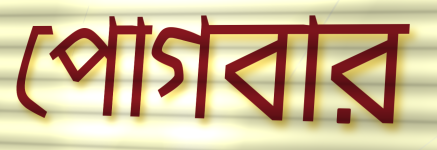
পোগবার